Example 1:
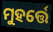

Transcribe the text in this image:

ମୁହର୍ତ୍ତେ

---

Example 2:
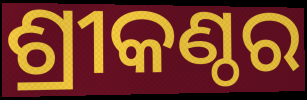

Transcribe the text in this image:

ଶ୍ରୀକଣ୍ଠର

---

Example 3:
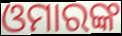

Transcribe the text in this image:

ଓମାରଙ୍କ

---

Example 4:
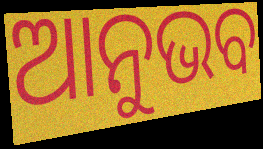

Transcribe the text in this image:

ଆନୁଭବ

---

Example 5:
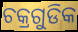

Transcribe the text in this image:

ଚକ୍ରଗୁଡିକ